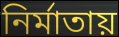
নির্মাতায়